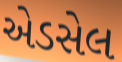
એડસેલ